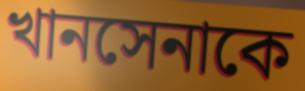
খানসেনাকে